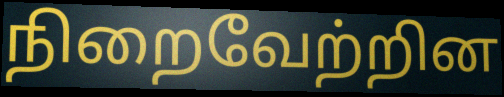
நிறைவேற்றின